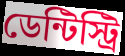
ডেন্টিস্ট্রি